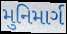
મુનિમાર્ગ